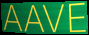
AAVE